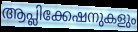
ആപ്ലിക്കേഷനുകളും